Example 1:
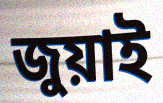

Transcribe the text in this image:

জুয়াই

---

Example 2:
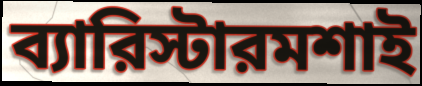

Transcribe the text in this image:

ব্যারিস্টারমশাই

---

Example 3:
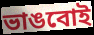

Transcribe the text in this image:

ভাঙবোই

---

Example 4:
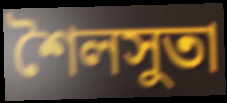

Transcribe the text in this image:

শৈলসুতা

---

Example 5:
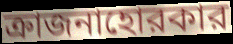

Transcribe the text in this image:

ক্রাজনাহোরকার